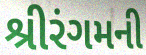
શ્રીરંગમની